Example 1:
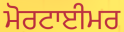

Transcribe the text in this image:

ਮੋਰਟਾਈਮਰ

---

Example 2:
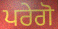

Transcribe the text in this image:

ਪਰੇਗੋ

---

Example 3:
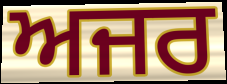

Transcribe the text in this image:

ਅਜਰ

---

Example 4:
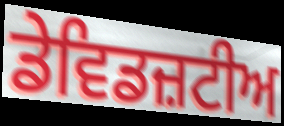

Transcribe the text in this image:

ਡੇਵਿਡਜ਼ਟੀਅ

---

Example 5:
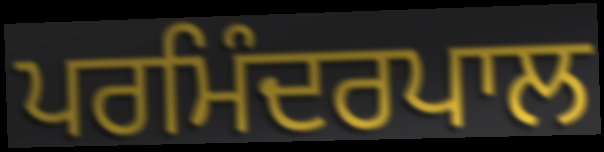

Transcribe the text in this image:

ਪਰਮਿੰਦਰਪਾਲ